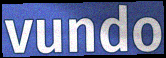
vundo